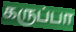
கருப்பா